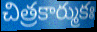
చిత్రకార్ముకః